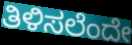
ತಿಳಿಸಲೆಂದೇ